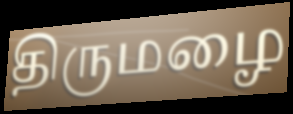
திருமழை